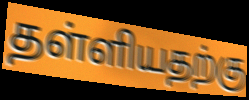
தள்ளியதற்கு